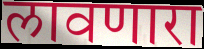
लावणारा